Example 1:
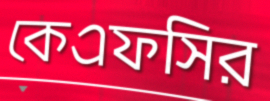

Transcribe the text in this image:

কেএফসির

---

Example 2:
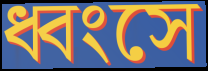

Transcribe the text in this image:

ধ্বংসে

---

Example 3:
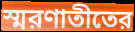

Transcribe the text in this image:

স্মরণাতীতের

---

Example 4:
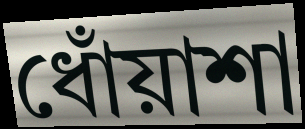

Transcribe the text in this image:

ধোঁয়াশা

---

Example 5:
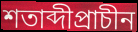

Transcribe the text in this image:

শতাব্দীপ্রাচীন